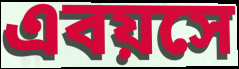
এবয়সে